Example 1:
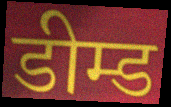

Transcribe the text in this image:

डीम्ड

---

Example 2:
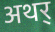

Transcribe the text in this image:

अथर्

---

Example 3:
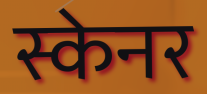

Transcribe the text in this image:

स्‍केनर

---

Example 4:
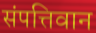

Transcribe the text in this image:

संपत्तिवान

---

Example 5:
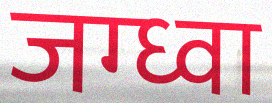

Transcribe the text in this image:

जग्ध्वा